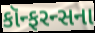
કૉન્ફરન્સના